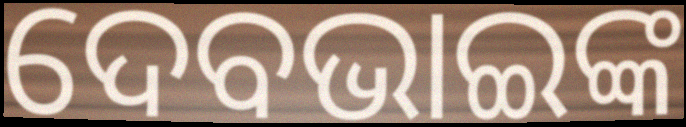
ଦେବଭାଇଙ୍କ